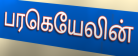
பரகெயேலின்